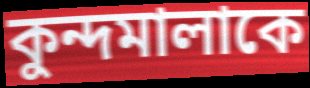
কুন্দমালাকে